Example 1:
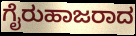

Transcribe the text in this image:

ಗೈರುಹಾಜರಾದ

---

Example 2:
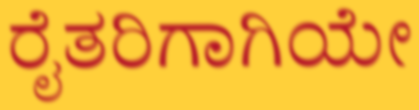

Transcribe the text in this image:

ರೈತರಿಗಾಗಿಯೇ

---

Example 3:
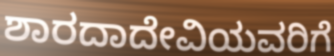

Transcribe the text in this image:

ಶಾರದಾದೇವಿಯವರಿಗೆ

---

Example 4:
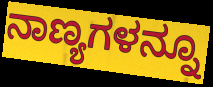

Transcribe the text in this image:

ನಾಣ್ಯಗಳನ್ನೂ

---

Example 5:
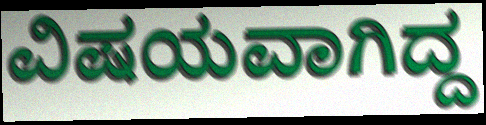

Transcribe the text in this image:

ವಿಷಯವಾಗಿದ್ದ